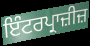
ਇੰਟਰਪ੍ਰਾਜ਼ੀਜ਼